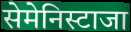
सेमेनिस्टाजा